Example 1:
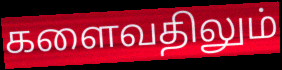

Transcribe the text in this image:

களைவதிலும்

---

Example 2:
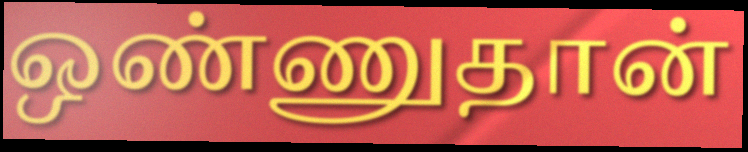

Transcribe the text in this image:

ஒண்ணுதான்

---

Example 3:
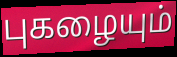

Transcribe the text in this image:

புகழையும்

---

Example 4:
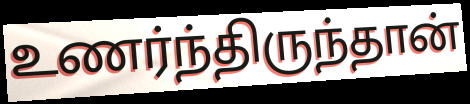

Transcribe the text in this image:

உணர்ந்திருந்தான்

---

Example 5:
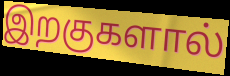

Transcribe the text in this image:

இறகுகளால்